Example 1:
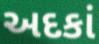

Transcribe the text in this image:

અદકાં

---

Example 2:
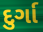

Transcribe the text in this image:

દુર્ગા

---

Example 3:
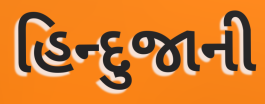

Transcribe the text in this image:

હિન્દુજાની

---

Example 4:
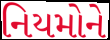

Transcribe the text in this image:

નિયમોને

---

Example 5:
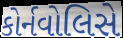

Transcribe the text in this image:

કોર્નવોલિસે